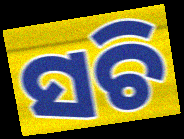
ସଚି